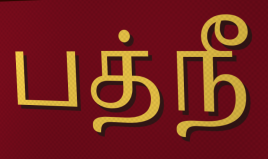
பத்நீ